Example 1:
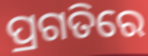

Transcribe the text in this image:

ପ୍ରଗତିରେ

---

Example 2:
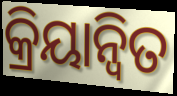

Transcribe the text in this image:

କ୍ରିୟାନ୍ୱିତ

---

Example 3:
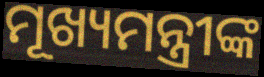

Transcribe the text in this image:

ମୂଖ୍ୟମନ୍ତ୍ରୀଙ୍କ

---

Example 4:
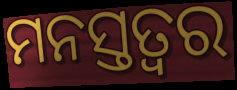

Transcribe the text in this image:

ମନସ୍ତତ୍ଵର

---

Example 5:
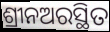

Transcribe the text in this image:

ଶ୍ରୀନଅରସ୍ଥିତ